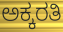
ಅಕ್ಕರತಿ